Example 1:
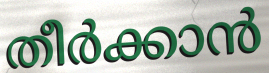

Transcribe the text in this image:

തീർക്കാൻ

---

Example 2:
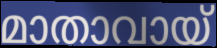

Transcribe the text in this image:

മാതാവായ്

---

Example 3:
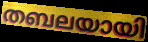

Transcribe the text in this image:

തബലയായി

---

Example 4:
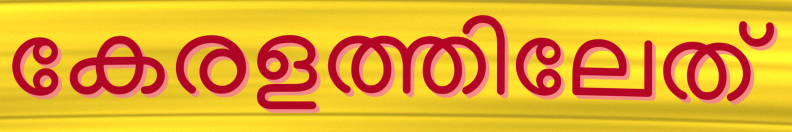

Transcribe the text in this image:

കേരളത്തിലേത്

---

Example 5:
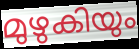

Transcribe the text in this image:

മുഴുകിയും